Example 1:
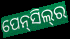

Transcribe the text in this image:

ପେନ୍‌ସିଲ୍‌ର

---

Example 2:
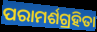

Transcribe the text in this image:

ପରାମର୍ଶଗ୍ରହିତା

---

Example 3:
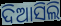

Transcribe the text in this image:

ଦିଆସିଲି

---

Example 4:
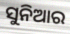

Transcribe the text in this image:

ସୁନିଆର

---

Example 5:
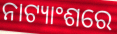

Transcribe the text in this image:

ନାଟ୍ୟାଂଶରେ